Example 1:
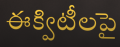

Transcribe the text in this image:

ఈక్విటీలపై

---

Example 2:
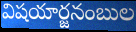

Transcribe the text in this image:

విషయార్జనంబుల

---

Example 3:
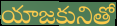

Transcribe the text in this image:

యాజకునితో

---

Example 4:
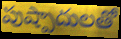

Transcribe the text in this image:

పుష్పాదులతో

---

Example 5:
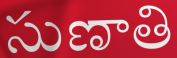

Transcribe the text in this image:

సుణాతి